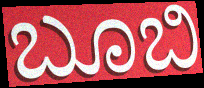
ಬೂಬಿ